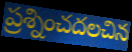
ప్రశ్నించదలచిన